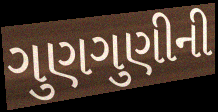
ગુણગુણીની